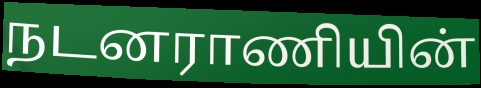
நடனராணியின்